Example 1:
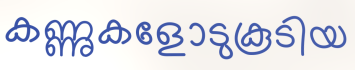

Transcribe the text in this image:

കണ്ണുകളോടുകൂടിയ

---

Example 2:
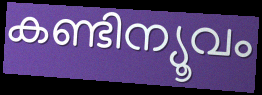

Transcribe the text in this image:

കണ്ടിന്യൂവം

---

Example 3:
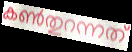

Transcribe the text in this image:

കൺതുറന്നത്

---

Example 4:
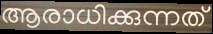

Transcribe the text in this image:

ആരാധിക്കുന്നത്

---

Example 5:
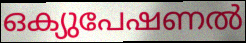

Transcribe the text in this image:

ഒക്യുപേഷണൽ